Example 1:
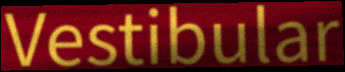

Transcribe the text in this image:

Vestibular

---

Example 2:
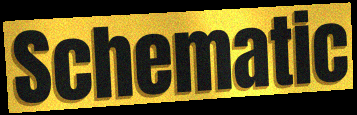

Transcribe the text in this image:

Schematic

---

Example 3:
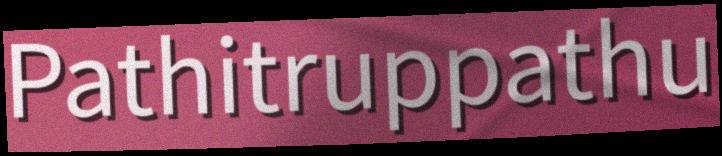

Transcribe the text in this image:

Pathitruppathu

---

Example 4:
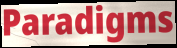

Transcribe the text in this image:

Paradigms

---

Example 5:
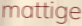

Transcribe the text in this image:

mattige